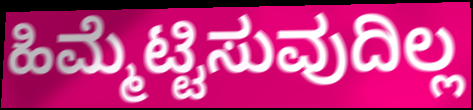
ಹಿಮ್ಮೆಟ್ಟಿಸುವುದಿಲ್ಲ